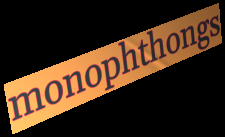
monophthongs